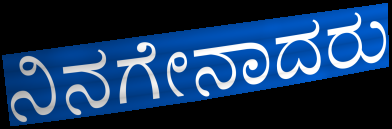
ನಿನಗೇನಾದರು